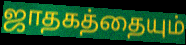
ஜாதகத்தையும்